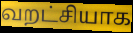
வறட்சியாக